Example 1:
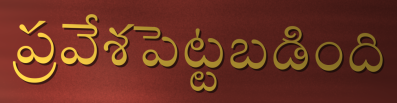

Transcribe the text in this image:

ప్రవేశపెట్టబడింది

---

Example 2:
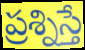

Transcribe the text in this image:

ప్రశ్నిస్తే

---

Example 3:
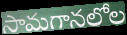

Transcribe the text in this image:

సామగానలోల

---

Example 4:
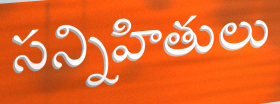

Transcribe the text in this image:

సన్నిహితులు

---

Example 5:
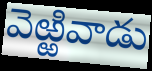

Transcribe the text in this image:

వెఱ్ఱివాడు